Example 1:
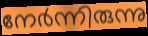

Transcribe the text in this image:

നേർന്നിരുന്നു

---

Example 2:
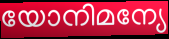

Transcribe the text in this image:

യോനിമന്യേ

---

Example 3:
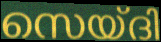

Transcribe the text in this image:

സെയ്ദി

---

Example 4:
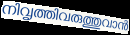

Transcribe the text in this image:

നിവൃത്തിവരുത്തുവാൻ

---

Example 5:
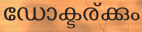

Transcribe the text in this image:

ഡോക്ടര്ക്കും